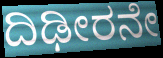
ದಿಢೀರನೇ